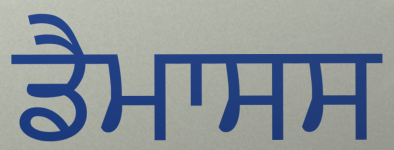
ਡੈਮਾਸਸ